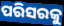
ପରିସରକୁ